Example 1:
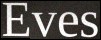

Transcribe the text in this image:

Eves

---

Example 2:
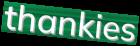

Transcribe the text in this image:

thankies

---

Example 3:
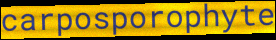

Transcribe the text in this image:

carposporophyte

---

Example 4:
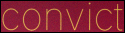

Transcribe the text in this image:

convict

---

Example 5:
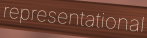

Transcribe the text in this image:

representational